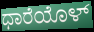
ಧಾರೆಯೊಳ್